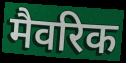
मैवरिक